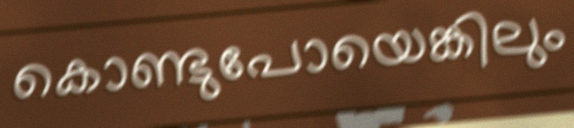
കൊണ്ടുപോയെങ്കിലും